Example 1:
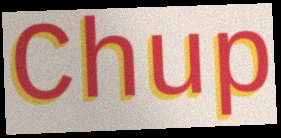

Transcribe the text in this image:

Chup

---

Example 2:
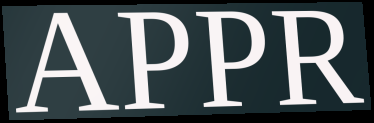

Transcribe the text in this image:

APPR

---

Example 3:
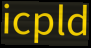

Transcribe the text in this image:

icpld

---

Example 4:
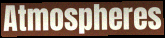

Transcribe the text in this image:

Atmospheres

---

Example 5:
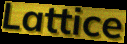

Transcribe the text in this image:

Lattice